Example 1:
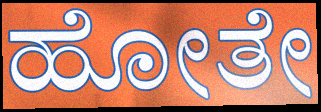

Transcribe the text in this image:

ಹೋತೇ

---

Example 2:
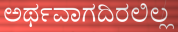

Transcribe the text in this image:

ಅರ್ಥವಾಗದಿರಲಿಲ್ಲ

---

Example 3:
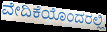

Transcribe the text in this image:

ವೇದಿಕೆಯೊಂದರಲ್ಲಿ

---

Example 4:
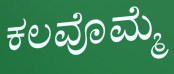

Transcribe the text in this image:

ಕಲವೊಮ್ಮೆ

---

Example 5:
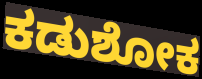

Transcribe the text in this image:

ಕಡುಶೋಕ